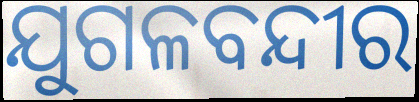
ଯୁଗଳବନ୍ଦୀର